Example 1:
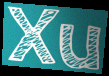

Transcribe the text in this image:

Xu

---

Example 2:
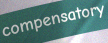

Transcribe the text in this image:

compensatory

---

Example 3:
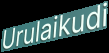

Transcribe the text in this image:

Urulaikudi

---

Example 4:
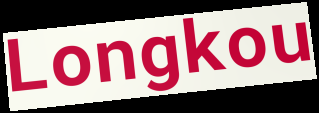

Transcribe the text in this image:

Longkou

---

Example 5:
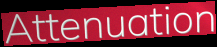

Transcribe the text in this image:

Attenuation